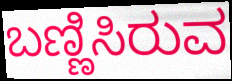
ಬಣ್ಣಿಸಿರುವ